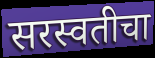
सरस्वतीचा